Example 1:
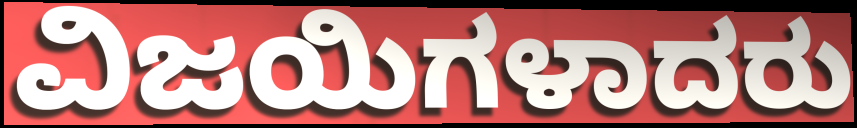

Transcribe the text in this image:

ವಿಜಯಿಗಳಾದರು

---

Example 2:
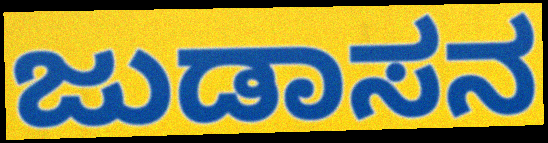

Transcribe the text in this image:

ಜುಡಾಸನ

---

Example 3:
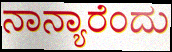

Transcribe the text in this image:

ನಾನ್ಯಾರೆಂದು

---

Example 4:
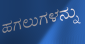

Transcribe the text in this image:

ಹಗಲುಗಳನ್ನು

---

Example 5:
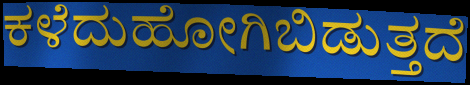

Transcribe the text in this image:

ಕಳೆದುಹೋಗಿಬಿಡುತ್ತದೆ